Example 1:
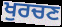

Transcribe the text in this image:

ਖੁਰਚਣ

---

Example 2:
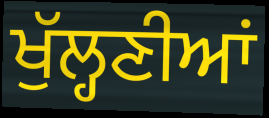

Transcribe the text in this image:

ਖੁੱਲ੍ਹਣੀਆਂ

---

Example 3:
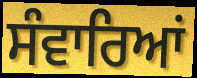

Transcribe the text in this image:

ਸੰਵਾਰਿਆਂ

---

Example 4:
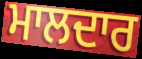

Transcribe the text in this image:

ਮਾਲਦਾਰ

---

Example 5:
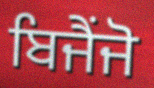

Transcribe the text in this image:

ਬਿਜੈਂਜੋ